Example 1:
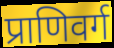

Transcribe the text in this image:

प्राणिवर्ग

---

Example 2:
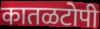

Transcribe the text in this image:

कातळटोपी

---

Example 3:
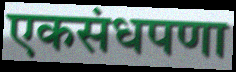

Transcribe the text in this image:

एकसंधपणा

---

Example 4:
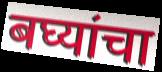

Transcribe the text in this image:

बघ्यांचा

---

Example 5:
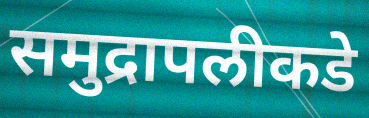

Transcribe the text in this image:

समुद्रापलीकडे